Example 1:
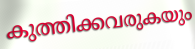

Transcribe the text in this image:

കുത്തിക്കവരുകയും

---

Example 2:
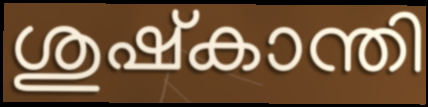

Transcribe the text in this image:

ശുഷ്കാന്തി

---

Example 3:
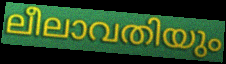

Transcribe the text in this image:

ലീലാവതിയും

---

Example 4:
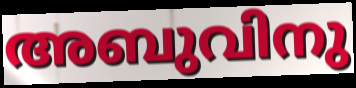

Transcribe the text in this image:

അബുവിനു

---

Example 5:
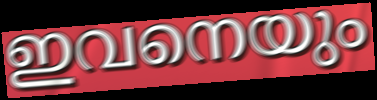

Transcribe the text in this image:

ഇവനെയും